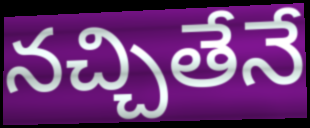
నచ్చితేనే